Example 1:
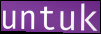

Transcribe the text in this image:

untuk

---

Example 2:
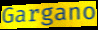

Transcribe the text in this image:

Gargano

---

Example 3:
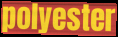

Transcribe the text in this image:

polyester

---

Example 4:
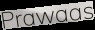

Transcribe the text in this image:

Prawaas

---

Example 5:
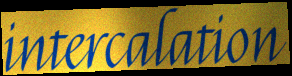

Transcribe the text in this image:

intercalation